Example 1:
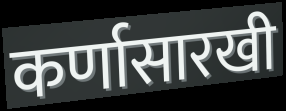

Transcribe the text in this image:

कर्णासारखी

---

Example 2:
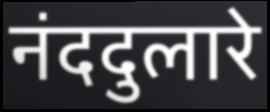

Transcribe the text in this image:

नंददुलारे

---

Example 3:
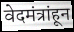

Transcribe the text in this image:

वेदमंत्रांहून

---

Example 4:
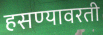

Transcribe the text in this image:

हसण्यावरती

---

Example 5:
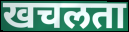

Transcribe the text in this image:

खचलता